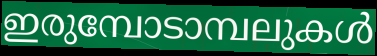
ഇരുമ്പോടാമ്പലുകൾ